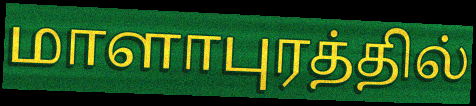
மாளாபுரத்தில்